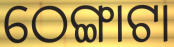
ଠେଙ୍ଗାଟା